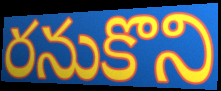
రనుకొని